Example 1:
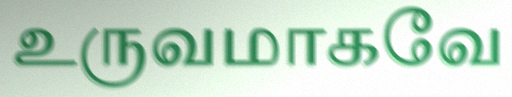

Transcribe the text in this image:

உருவமாகவே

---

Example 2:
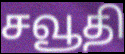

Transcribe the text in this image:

சவூதி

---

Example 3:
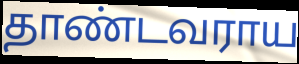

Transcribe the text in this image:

தாண்டவராய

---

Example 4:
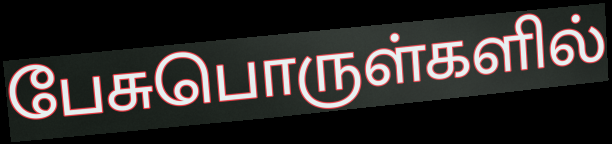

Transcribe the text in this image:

பேசுபொருள்களில்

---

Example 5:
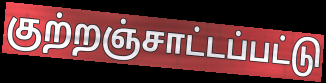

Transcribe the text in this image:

குற்றஞ்சாட்டப்பட்டு